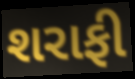
શરાફી